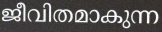
ജീവിതമാകുന്ന